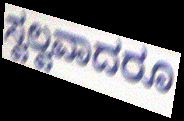
ಸ್ವಲ್ವವಾದರೂ